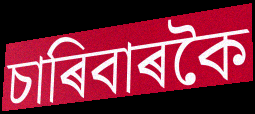
চাৰিবাৰকৈ